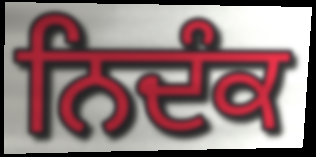
ਨਿਦੰਕ